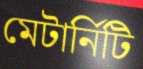
মেটার্নিটি